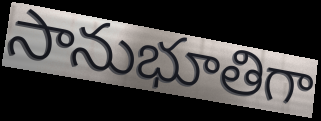
సానుభూతిగా